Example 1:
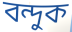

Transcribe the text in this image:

বন্দুক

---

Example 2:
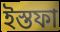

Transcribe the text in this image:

ইস্তফা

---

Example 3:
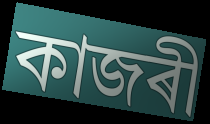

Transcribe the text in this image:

কাজৰী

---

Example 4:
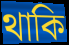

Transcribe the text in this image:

থাকি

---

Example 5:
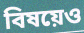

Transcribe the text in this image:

বিষয়েও